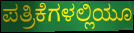
ಪತ್ರಿಕೆಗಳಲ್ಲಿಯೂ